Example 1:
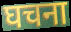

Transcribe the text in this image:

घचना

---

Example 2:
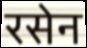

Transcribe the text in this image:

रसेन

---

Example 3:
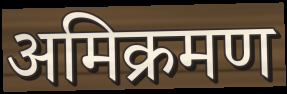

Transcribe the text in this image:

अमिक्रमण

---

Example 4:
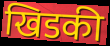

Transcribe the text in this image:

खिडकी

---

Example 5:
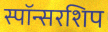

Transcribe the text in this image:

स्पॉन्सरशिप